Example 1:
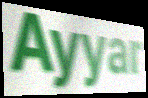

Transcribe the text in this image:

Ayyar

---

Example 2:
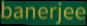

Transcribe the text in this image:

banerjee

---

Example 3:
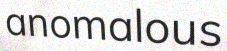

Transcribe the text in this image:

anomalous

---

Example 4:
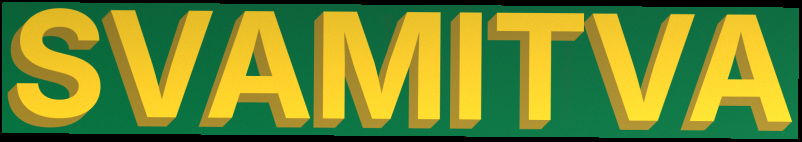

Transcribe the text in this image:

SVAMITVA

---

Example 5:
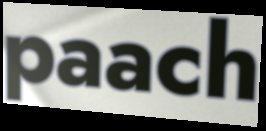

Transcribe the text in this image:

paach